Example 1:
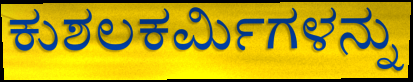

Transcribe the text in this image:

ಕುಶಲಕರ್ಮಿಗಳನ್ನು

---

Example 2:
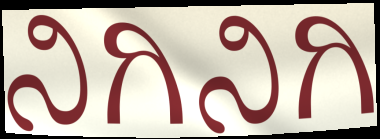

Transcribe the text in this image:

ನಿಗಿನಿಗಿ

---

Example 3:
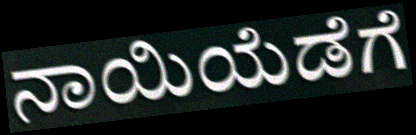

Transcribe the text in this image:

ನಾಯಿಯೆಡೆಗೆ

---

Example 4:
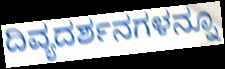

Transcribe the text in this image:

ದಿವ್ಯದರ್ಶನಗಳನ್ನೂ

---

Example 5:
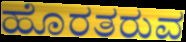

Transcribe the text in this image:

ಹೊರತರುವ